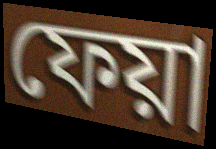
ফেয়া